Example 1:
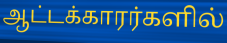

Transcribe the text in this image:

ஆட்டக்காரர்களில்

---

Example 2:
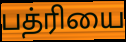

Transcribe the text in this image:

பத்ரியை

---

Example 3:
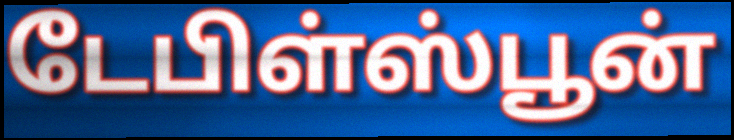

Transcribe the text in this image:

டேபிள்ஸ்பூன்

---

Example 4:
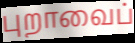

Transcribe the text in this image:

புறாவைப்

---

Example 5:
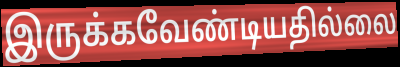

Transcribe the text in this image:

இருக்கவேண்டியதில்லை